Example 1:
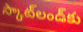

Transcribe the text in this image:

స్కాట్‌లండ్‌కు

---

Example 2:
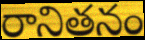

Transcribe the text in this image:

రానితనం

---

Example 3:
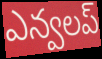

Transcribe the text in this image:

ఎన్వలప్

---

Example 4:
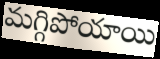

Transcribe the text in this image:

మగ్గిపోయాయి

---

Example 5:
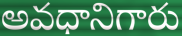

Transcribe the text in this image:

అవధానిగారు